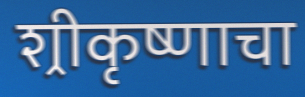
श्रीकृष्णाचा